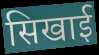
सिखाई